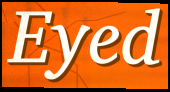
Eyed